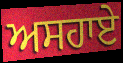
ਅਸਹਾਏ